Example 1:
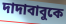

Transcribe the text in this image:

দাদাবাবুকে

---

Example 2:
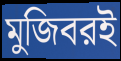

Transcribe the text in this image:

মুজিবরই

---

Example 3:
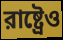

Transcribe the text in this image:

রাষ্ট্রেও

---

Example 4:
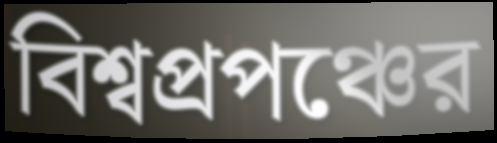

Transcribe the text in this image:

বিশ্বপ্রপঞ্চের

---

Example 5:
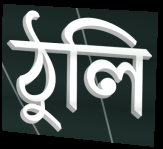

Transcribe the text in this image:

ঠুলি